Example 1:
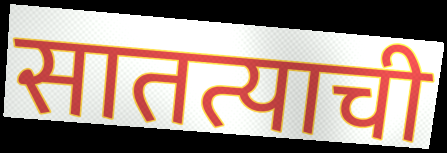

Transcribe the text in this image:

सातत्याची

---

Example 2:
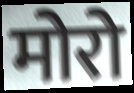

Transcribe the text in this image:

मोरो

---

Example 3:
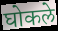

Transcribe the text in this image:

घोकले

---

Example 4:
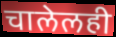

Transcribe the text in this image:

चालेलही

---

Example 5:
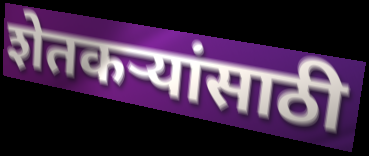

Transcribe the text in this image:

शेतकर्‍यांसाठी